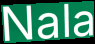
Nala